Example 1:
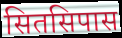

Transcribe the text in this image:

सितसिपास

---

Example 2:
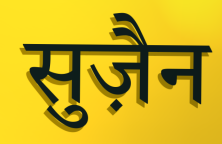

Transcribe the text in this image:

सुज़ैन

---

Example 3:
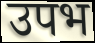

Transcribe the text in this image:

उपभ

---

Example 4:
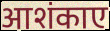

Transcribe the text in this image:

आशंकाए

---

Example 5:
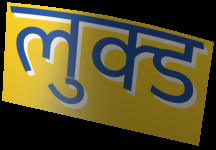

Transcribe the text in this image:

लुक्ड